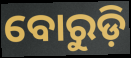
ବୋରୁଡ଼ି